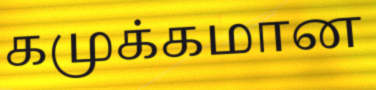
கமுக்கமான